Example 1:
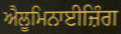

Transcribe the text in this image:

ਐਲੂਮਿਨਾਈਜ਼ਿੰਗ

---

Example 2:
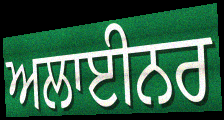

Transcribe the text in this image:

ਅਲਾਈਨਰ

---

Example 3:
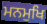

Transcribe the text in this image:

ਮਨਮੁਖਿ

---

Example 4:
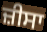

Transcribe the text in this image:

ਜ਼ੀਸਾ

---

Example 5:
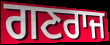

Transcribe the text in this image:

ਗਣਰਾਜ